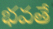
భవతే